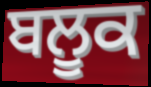
ਬਲੂਕ